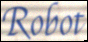
Robot